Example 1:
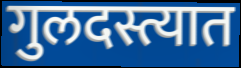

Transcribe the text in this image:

गुलदस्त्यात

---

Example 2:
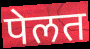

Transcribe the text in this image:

पेलत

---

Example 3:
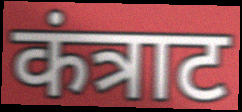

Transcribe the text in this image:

कंत्राट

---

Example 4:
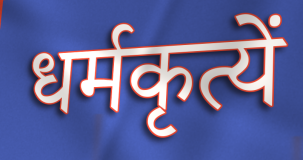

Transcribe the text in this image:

धर्मकृत्यें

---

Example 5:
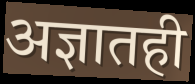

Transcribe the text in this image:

अज्ञातही